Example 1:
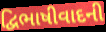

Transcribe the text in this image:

દ્વિભાષીવાદની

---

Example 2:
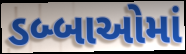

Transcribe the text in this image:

ડબ્બાઓમાં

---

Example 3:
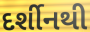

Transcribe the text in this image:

દર્શીનથી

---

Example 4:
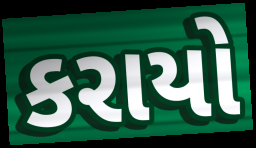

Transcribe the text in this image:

કરાયો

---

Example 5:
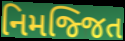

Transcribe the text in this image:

નિમજ્જિત